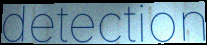
detection